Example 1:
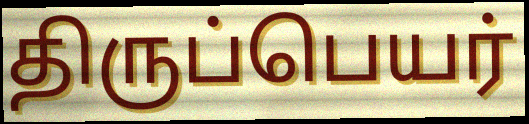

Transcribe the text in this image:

திருப்பெயர்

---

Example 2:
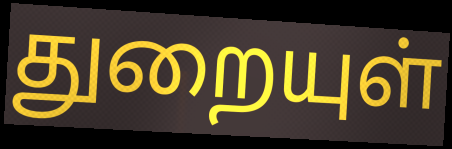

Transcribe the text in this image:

துறையுள்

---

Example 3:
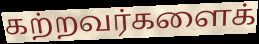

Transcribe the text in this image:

கற்றவர்களைக்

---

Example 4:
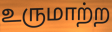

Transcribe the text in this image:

உருமாற்ற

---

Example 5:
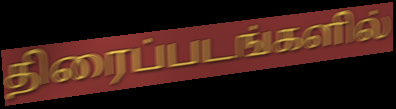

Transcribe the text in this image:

திரைப்படங்களில்